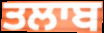
ਤਲਾਬ